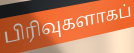
பிரிவுகளாகப்